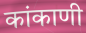
कांकाणी